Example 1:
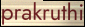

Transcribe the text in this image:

prakruthi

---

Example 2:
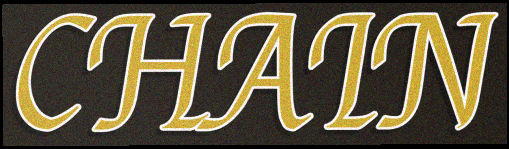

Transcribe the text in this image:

CHAIN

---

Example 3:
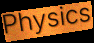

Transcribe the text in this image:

Physics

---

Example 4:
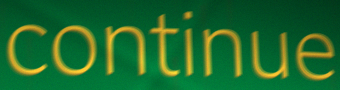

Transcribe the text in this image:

continue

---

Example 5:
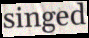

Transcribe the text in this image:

singed